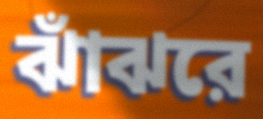
ঝাঁঝরে